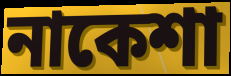
নাকেশা